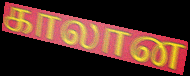
காலான